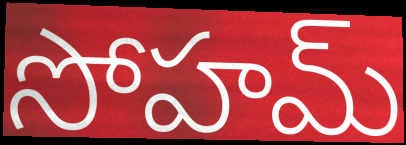
సోహమ్